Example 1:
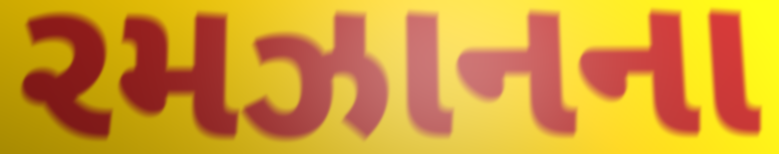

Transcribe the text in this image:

રમઝાનના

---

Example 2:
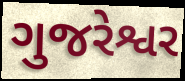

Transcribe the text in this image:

ગુજરેશ્વર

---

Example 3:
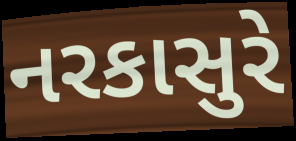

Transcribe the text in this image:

નરકાસુરે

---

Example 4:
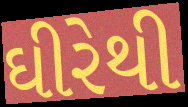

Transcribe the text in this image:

ઘીરેથી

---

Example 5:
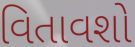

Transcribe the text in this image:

વિતાવશો